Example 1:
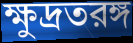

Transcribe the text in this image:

ক্ষুদ্রতরঙ্গ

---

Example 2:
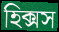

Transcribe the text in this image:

হিক্সস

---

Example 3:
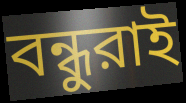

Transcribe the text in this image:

বন্ধুরাই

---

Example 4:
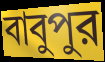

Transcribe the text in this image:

বাবুপুর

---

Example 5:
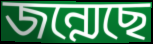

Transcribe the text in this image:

জন্মেছে